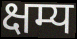
क्षम्य